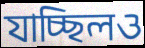
যাচ্ছিলও